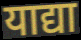
याद्या